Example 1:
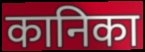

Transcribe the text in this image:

कानिका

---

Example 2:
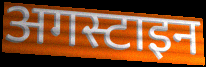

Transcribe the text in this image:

अगस्टाइन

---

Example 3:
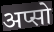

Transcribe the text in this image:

अप्सो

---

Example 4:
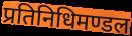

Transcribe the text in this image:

प्रतिनिधिमण्डल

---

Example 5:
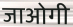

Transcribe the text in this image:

जाओगी